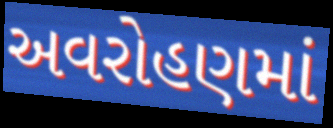
અવરોહણમાં